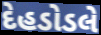
દેહડોડલે